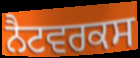
ਨੈਟਵਰਕਸ